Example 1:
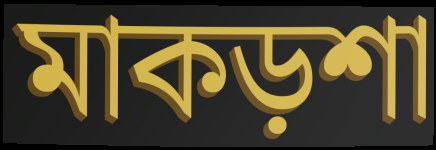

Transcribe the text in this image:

মাকড়শা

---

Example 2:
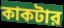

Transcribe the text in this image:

কাকটার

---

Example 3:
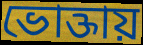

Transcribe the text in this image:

ভোক্তায়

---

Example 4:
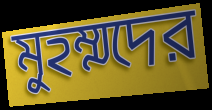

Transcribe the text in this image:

মুহম্মদের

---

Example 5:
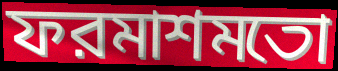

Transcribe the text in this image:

ফরমাশমতো